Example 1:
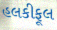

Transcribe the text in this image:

હલકીફૂલ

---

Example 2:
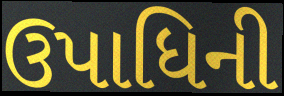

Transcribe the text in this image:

ઉપાધિની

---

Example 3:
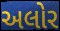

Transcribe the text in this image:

અલોર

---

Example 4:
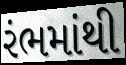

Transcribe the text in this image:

રંભમાંથી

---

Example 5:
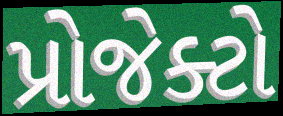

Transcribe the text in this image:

પ્રોજેક્ટો